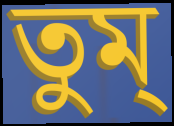
তুম্